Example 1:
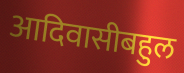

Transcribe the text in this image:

आदिवासीबहुल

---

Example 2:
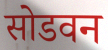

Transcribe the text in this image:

सोडवन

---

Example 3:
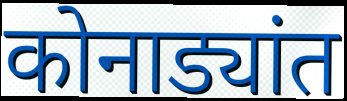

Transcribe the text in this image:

कोनाड्यांत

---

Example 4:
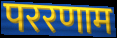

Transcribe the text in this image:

पररणाम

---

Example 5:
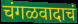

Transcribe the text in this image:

चंगळवादाचं